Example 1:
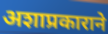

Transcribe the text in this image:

अशाप्रकाराने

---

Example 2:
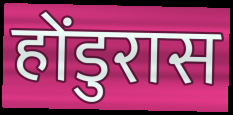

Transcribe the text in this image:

होंडुरास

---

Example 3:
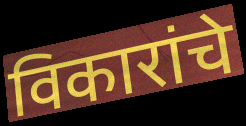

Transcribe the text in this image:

विकारांचे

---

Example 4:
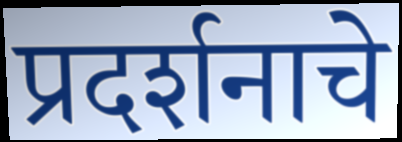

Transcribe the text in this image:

प्रदर्शनाचे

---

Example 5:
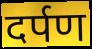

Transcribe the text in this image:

दर्पण